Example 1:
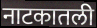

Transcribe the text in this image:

नाटकातली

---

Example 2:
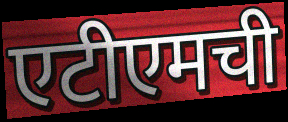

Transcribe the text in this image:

एटीएमची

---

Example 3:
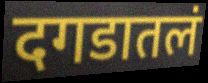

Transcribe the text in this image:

दगडातलं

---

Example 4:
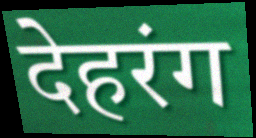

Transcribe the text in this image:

देहरंग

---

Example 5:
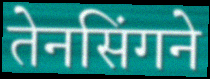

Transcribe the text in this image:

तेनसिंगने